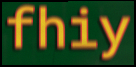
fhiy